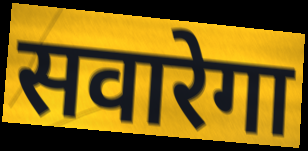
सवारेगा